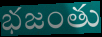
భజంతు